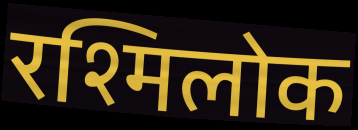
रश्मिलोक